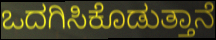
ಒದಗಿಸಿಕೊಡುತ್ತಾನೆ